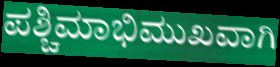
ಪಶ್ಚಿಮಾಭಿಮುಖವಾಗಿ